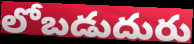
లోబడుదురు